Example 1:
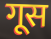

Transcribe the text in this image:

गूस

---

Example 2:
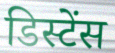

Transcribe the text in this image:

डिस्टेंस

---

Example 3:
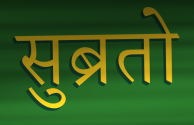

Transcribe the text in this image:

सुब्रतो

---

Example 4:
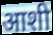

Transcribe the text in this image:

आशी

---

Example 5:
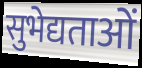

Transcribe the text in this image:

सुभेद्यताओं